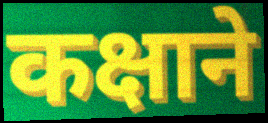
कक्षाने